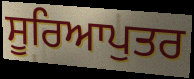
ਸੂਰਿਆਪੁਤਰ